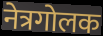
नेत्रगोलक